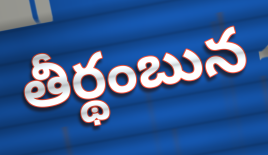
తీర్థంబున